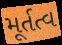
મૂર્તત્વ